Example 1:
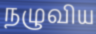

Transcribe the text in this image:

நழுவிய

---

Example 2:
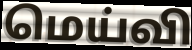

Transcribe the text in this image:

மெய்வி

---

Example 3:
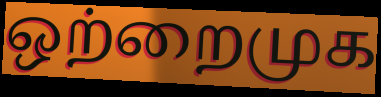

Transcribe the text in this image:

ஒற்றைமுக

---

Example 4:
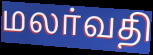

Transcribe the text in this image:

மலர்வதி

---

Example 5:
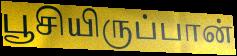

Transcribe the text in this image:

பூசியிருப்பான்